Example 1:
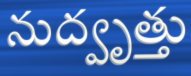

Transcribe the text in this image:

నుద్వృత్తు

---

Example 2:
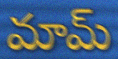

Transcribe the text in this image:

మామ్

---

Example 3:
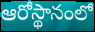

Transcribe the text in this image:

ఆరోస్థానంలో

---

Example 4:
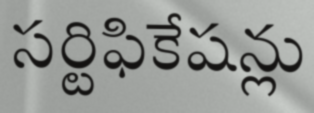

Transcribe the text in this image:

సర్టిఫికేషన్లు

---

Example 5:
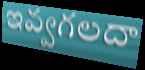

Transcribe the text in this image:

ఇవ్వగలదా